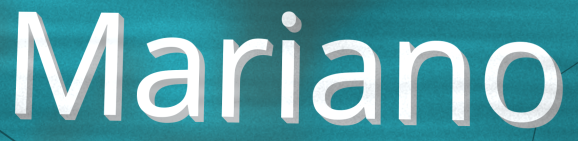
Mariano